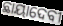
ଛାୟାଦେବୀ